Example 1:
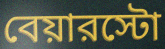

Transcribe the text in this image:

বেয়ারস্টো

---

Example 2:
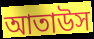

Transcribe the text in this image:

আতাউস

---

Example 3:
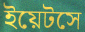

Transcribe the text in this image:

ইয়েটসে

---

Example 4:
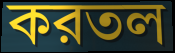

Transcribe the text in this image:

করতল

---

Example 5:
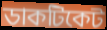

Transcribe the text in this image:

ডাকটিকেট